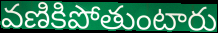
వణికిపోతుంటారు